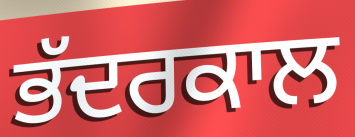
ਭੱਦਰਕਾਲ